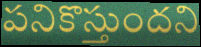
పనికొస్తుందని